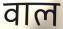
वाल